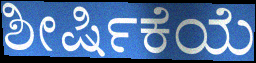
ಶೀರ್ಷಿಕೆಯೆ